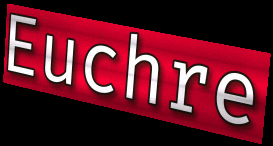
Euchre